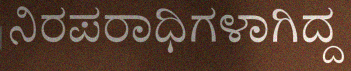
ನಿರಪರಾಧಿಗಳಾಗಿದ್ದ